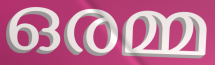
ഒരമ്മ